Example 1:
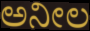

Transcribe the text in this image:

ಅನೀಲ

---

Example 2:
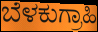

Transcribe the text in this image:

ಬೆಳಕುಗ್ರಾಹಿ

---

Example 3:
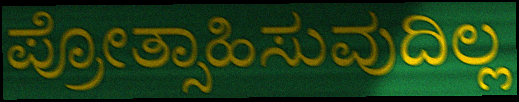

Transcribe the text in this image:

ಪ್ರೋತ್ಸಾಹಿಸುವುದಿಲ್ಲ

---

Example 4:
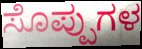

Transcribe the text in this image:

ಸೊಪ್ಪುಗಳ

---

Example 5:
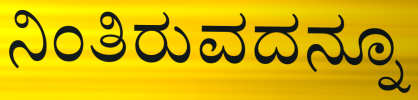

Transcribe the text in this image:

ನಿಂತಿರುವದನ್ನೂ